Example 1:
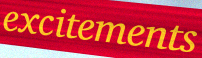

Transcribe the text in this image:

excitements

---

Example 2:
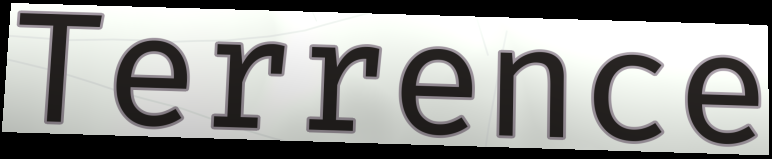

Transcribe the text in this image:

Terrence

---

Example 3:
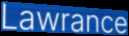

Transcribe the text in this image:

Lawrance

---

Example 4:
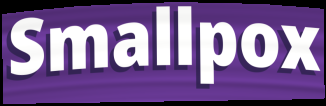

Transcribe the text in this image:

Smallpox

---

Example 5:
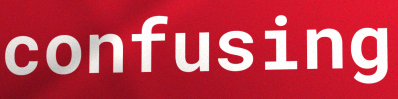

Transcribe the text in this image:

confusing